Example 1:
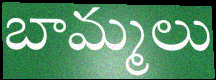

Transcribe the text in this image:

బామ్మలు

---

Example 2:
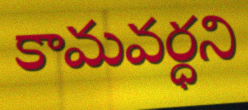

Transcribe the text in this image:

కామవర్ధని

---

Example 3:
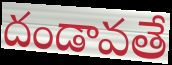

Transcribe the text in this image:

దండావతే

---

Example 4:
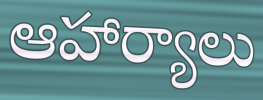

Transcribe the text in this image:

ఆహార్యాలు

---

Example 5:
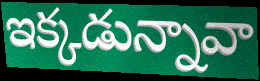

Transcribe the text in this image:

ఇక్కడున్నావా